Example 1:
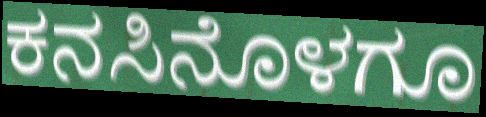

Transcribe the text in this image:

ಕನಸಿನೊಳಗೂ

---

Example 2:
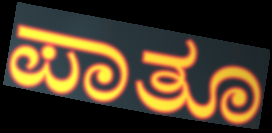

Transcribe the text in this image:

ಪಾತೂ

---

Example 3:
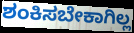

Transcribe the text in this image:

ಶಂಕಿಸಬೇಕಾಗಿಲ್ಲ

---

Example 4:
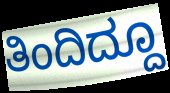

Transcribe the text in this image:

ತಿಂದಿದ್ದೂ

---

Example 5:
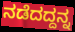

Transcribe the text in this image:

ನಡೆದದ್ದನ್ನ